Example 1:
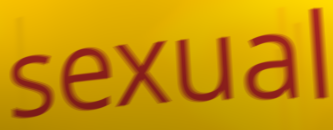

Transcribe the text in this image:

sexual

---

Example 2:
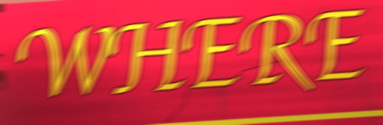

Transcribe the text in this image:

WHERE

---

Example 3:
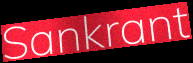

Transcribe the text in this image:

Sankrant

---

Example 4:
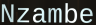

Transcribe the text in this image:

Nzambe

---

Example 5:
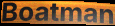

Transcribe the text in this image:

Boatman